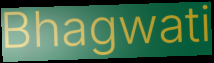
Bhagwati